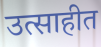
उत्साहीत